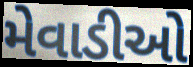
મેવાડીઓ